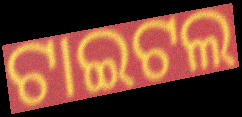
ଟାଇଟଲ